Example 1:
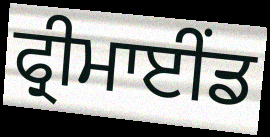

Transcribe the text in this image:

ਫ੍ਰੀਮਾਈਂਡ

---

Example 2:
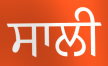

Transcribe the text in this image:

ਸਾਲੀ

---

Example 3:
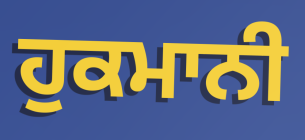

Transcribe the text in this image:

ਹੁਕਮਾਨੀ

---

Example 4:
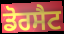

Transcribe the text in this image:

ਡੋਰਸੈਟ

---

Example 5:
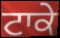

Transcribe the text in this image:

ਟਾਕੇ